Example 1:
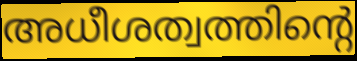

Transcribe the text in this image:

അധീശത്വത്തിന്റെ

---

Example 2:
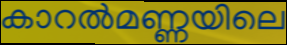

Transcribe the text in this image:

കാറൽമണ്ണയിലെ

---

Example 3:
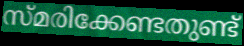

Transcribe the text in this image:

സ്മരിക്കേണ്ടതുണ്ട്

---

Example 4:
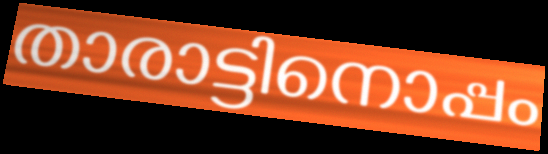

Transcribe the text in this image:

താരാട്ടിനൊപ്പം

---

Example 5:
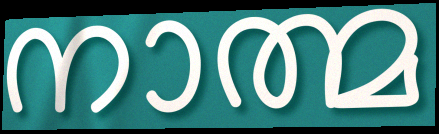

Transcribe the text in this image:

നാത്മ